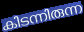
കിടന്നിരുന്ന